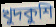
খুদকুশি